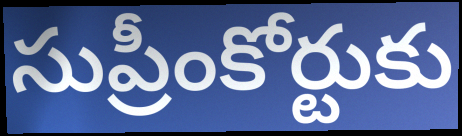
సుప్రీంకోర్టుకు